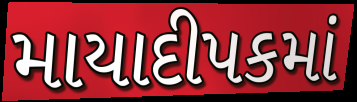
માયાદીપકમાં